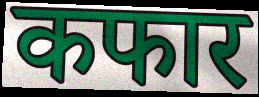
कफार